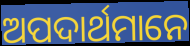
ଅପଦାର୍ଥମାନେ